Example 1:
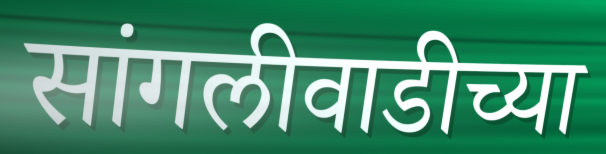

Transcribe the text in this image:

सांगलीवाडीच्या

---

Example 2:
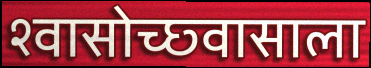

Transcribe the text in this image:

श्वासोच्छ्वासाला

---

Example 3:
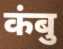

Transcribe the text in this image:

कंबु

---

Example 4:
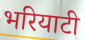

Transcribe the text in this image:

भरियाटी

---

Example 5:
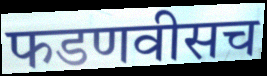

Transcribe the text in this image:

फडणवीसच